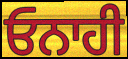
ਓਨਾਹੀ